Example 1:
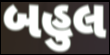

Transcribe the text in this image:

બહુલ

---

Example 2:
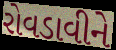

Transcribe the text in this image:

રોવડાવીને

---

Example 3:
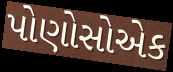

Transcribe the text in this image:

પોણોસોએક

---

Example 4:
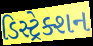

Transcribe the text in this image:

ડિસ્ટ્રેક્શન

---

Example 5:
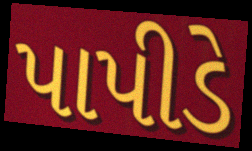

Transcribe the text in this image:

પાપીડે